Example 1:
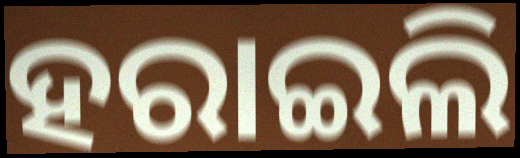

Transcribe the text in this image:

ହରାଇଲି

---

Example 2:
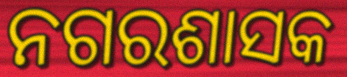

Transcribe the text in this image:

ନଗରଶାସକ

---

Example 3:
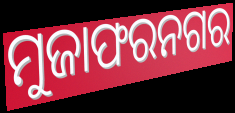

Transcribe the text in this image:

ମୁଜାଫରନଗର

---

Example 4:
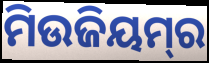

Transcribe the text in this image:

ମିଉଜିୟମ୍‌ର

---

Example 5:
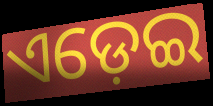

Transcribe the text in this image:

ଏଡ଼େଇ